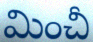
మించీ